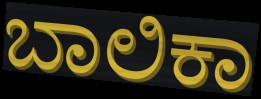
ಬಾಲಿಕಾ